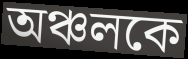
অঞ্চলকে